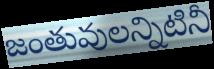
జంతువులన్నిటినీ